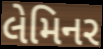
લેમિનર